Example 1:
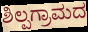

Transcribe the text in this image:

ಶಿಲ್ಪಗ್ರಾಮದ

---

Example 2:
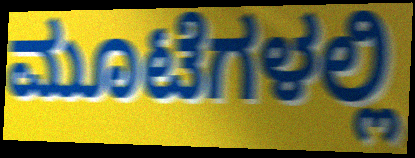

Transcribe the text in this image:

ಮೂಟೆಗಳಲ್ಲಿ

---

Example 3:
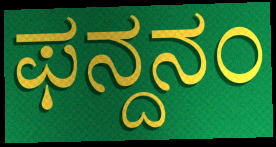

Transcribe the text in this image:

ಫನ್ದನಂ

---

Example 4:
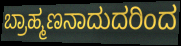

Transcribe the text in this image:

ಬ್ರಾಹ್ಮಣನಾದುದರಿಂದ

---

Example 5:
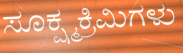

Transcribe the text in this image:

ಸೂಕ್ಷ್ಮಕ್ರಿಮಿಗಳು